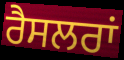
ਰੈਸਲਰਾਂ